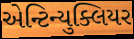
એન્ટિન્યુક્લિયર